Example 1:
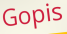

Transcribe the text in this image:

Gopis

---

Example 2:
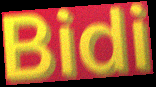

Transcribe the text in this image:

Bidi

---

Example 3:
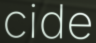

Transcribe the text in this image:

cide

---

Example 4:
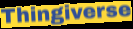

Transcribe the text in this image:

Thingiverse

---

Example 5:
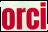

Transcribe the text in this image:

orci